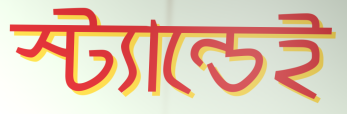
স্ট্যান্ডেই